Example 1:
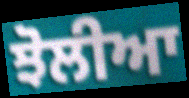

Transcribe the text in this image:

ਝੋਲੀਆ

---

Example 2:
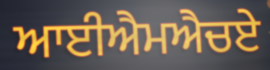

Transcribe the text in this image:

ਆਈਐਮਐਚਏ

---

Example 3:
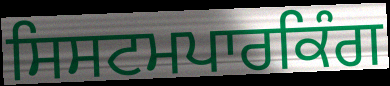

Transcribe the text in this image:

ਸਿਸਟਮਪਾਰਕਿੰਗ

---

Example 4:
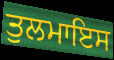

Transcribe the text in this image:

ਤੁਲਮਾਇਸ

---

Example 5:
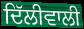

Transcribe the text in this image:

ਦਿੱਲੀਵਾਲੀ